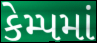
કેમ્પમાં